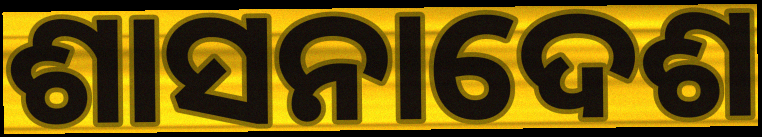
ଶାସନାଦେଶ